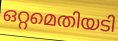
ഒറ്റമെതിയടി